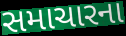
સમાચારના